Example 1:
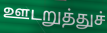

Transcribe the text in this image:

ஊடறுத்துச்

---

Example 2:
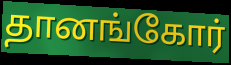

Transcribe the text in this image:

தானங்கோர்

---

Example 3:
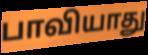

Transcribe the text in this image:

பாவியாது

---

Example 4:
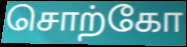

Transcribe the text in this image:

சொற்கோ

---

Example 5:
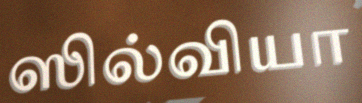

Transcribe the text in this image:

ஸில்வியா